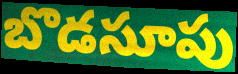
బొడసూపు